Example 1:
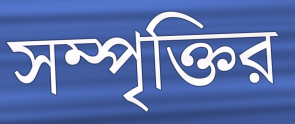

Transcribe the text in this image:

সম্পৃক্তির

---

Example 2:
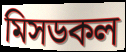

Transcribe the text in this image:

মিসডকল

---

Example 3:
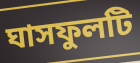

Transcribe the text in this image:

ঘাসফুলটি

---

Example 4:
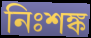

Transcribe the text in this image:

নিঃশঙ্ক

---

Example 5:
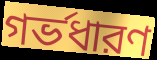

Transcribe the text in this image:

গর্ভধারণ